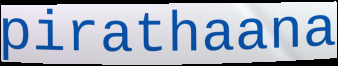
pirathaana